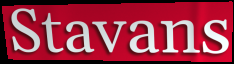
Stavans